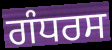
ਗੰਧਰਸ